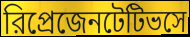
রিপ্রেজেনটেটিভসে